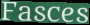
Fasces